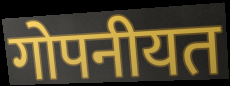
गोपनीयत